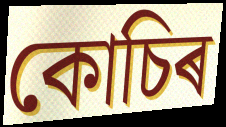
কোচিৰ